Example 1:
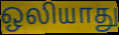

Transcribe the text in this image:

ஒலியாது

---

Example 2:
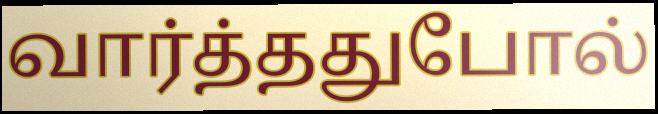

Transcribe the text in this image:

வார்த்ததுபோல்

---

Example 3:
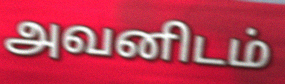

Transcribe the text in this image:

அவனிடம்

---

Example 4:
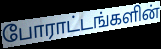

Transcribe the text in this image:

போராட்டங்களின்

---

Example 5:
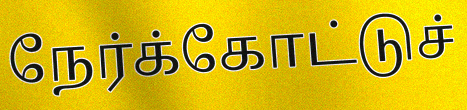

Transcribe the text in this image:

நேர்க்கோட்டுச்